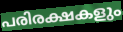
പരിരക്ഷകളും